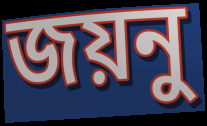
জয়নু